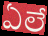
ఏలే